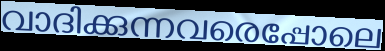
വാദിക്കുന്നവരെപ്പോലെ